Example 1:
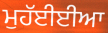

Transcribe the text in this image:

ਮੁਹੱਈਈਆ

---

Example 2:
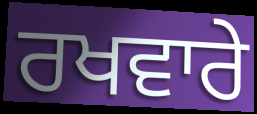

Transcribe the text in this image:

ਰਖਵਾਰੇ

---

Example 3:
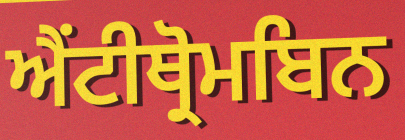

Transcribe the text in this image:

ਐਂਟੀਥ੍ਰੋਮਬਿਨ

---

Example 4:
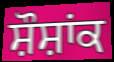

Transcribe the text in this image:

ਸ਼ੌਸ਼ਾਂਕ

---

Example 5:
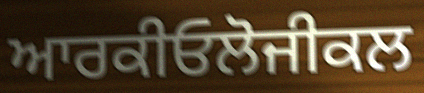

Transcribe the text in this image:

ਆਰਕੀਓਲੋਜੀਕਲ